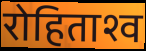
रोहिताश्व